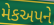
મેકઅપને